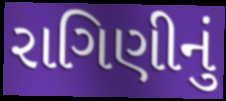
રાગિણીનું